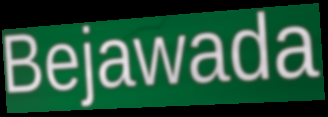
Bejawada